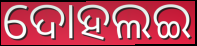
ଦୋହଲଇ